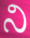
ನಿ